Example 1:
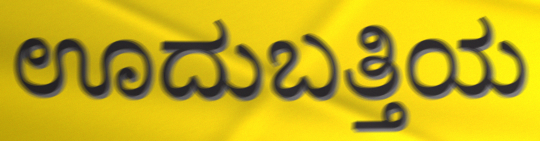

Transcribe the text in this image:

ಊದುಬತ್ತಿಯ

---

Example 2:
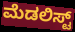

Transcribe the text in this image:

ಮೆಡಲಿಸ್ಟ್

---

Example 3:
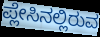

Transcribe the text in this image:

ಪ್ಲೇಸಿನಲ್ಲಿರುವ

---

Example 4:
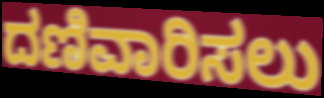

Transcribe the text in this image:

ದಣಿವಾರಿಸಲು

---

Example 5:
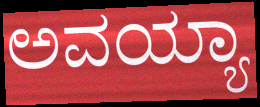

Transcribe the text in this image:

ಅವಯ್ಯಾ